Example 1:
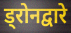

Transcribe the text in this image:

ड्रोनद्वारे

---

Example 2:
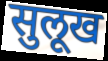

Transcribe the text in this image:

सुलूख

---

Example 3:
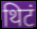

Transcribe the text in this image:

थिटं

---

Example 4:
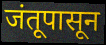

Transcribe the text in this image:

जंतूपासून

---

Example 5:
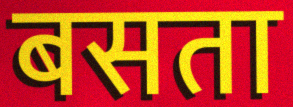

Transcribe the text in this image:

बसता